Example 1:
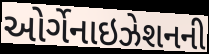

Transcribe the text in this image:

ઓર્ગેનાઇઝેશનની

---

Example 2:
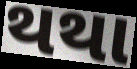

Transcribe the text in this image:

થથા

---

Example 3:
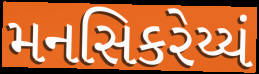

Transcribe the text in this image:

મનસિકરેય્યં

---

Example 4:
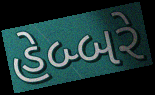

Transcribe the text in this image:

હેબ્બરે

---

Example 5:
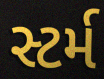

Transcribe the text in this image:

સ્ટર્મ